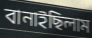
বানাইছিলাম